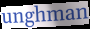
unghman